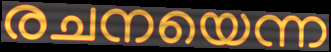
രചനയെന്ന